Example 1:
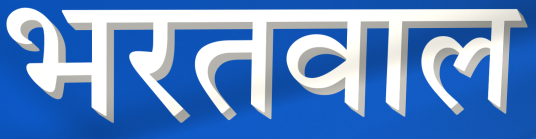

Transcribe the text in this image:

भरतवाल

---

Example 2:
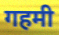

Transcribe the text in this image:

गहमी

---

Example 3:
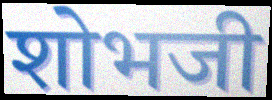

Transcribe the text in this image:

शोभजी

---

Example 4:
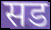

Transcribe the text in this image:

सड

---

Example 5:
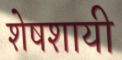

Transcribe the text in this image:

शेषशायी